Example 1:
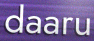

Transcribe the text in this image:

daaru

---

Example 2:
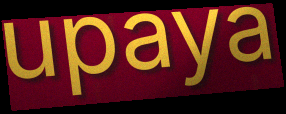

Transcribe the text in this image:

upaya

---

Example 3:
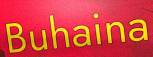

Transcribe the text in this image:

Buhaina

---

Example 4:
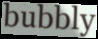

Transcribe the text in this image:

bubbly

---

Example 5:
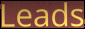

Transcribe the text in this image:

Leads